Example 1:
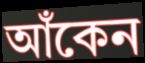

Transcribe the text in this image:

আঁকেন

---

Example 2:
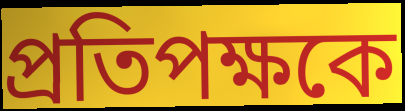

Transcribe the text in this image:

প্রতিপক্ষকে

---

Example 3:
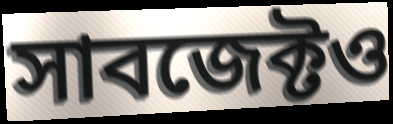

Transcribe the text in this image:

সাবজেক্টও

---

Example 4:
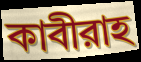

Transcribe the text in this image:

কাবীরাহ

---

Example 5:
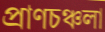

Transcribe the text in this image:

প্রাণচঞ্চলা